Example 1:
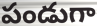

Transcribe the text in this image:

పండుగా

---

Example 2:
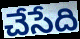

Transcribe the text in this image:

చేసేది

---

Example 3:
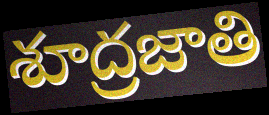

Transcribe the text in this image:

శూద్రజాతి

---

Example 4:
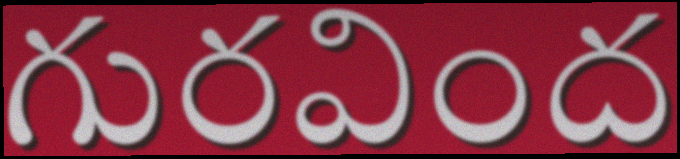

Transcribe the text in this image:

గురవింద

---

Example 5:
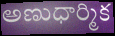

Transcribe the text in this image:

అణుధార్మిక